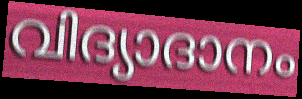
വിദ്യാദാനം